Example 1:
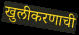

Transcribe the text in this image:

खुलीकरणाची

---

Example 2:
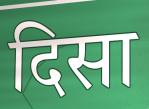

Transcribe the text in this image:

दिसा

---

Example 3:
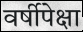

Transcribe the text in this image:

वर्षीपेक्षा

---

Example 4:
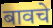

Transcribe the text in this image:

बावचे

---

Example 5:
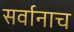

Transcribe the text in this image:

सर्वानाच